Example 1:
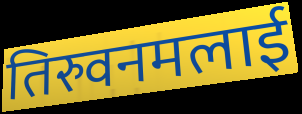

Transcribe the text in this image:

तिरुवनमलाई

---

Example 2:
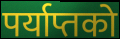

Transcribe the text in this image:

पर्याप्तको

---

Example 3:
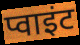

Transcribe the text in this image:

प्वाइंट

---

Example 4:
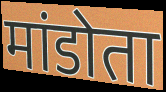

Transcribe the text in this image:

मांडोता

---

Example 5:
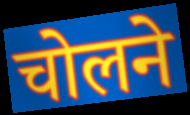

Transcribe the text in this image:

चोलने